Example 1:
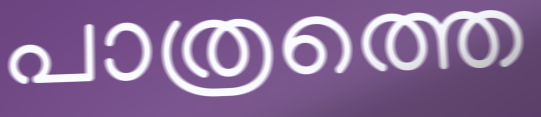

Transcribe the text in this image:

പാത്രത്തെ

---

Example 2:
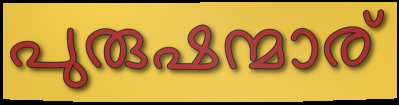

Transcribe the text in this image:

പുരുഷന്മാര്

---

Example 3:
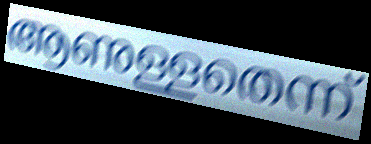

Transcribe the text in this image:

ആണുള്ളതെന്ന്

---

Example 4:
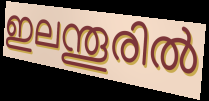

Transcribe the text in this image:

ഇലന്തൂരിൽ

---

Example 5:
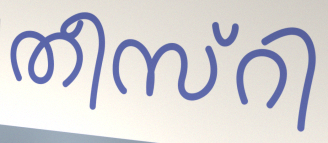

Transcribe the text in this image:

തീസ്റി